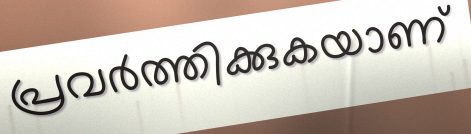
പ്രവർത്തിക്കുകയാണ്